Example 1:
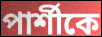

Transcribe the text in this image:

পার্শীকে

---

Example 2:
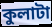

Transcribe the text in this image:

কুলাটা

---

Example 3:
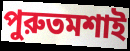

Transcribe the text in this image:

পুরুতমশাই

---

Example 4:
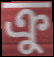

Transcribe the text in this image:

ক্রু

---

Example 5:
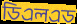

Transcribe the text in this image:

ডিএলএড